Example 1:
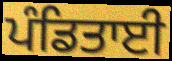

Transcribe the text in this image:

ਪੰਡਿਤਾਈ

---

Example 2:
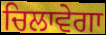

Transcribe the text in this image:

ਚਿਲਾਵੇਗਾ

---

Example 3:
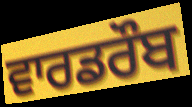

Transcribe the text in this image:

ਵਾਰਡਰੌਬ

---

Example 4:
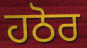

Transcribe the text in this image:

ਹਠੋਰ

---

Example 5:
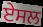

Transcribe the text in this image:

ਏਸਲ